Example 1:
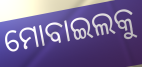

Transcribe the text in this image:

ମୋବାଇଲକୁ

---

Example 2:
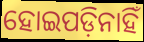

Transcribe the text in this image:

ହୋଇପଡ଼ିନାହିଁ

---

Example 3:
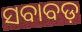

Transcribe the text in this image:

ସବାବଡ଼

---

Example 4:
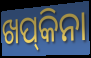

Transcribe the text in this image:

ଖପ୍‌କିନା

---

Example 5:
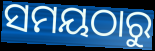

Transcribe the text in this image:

ସମୟଠାରୁ